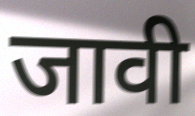
जावी